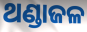
ଥଣ୍ଡାଜଳ